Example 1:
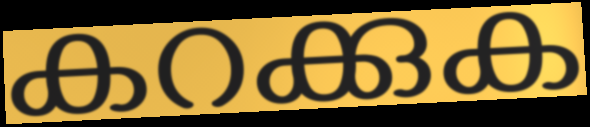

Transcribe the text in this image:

കറക്കുക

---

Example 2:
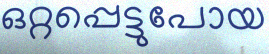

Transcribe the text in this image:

ഒറ്റപ്പെട്ടുപോയ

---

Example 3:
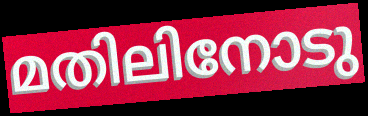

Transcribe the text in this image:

മതിലിനോടു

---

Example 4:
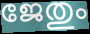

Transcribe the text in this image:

ജേതും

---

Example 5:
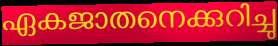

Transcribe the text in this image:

ഏകജാതനെക്കുറിച്ചു